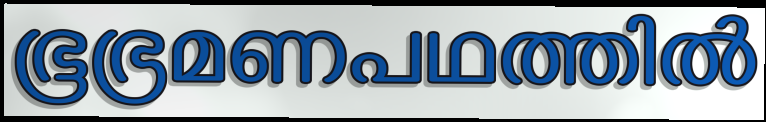
ഭൂഭ്രമണപഥത്തിൽ